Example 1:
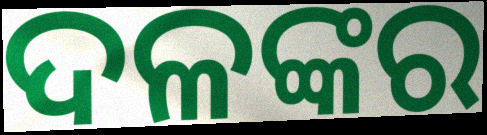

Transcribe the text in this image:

ଦଳଙ୍କର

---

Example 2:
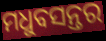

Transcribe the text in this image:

ମଧୁବସନ୍ତର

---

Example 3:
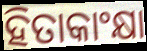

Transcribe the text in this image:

ହିତାକାଂକ୍ଷା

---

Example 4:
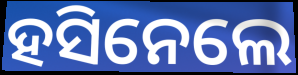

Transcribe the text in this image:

ହସିନେଲେ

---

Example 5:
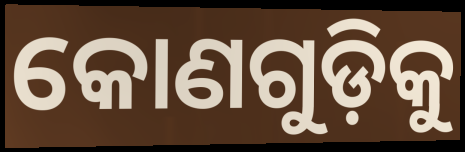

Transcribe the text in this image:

କୋଣଗୁଡ଼ିକୁ